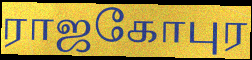
ராஜகோபுர